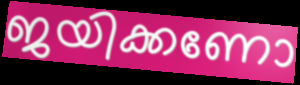
ജയിക്കണോ